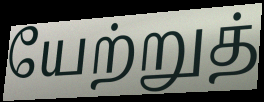
யேற்றுத்